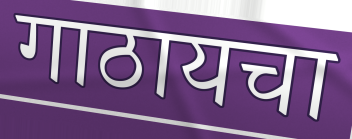
गाठायचा